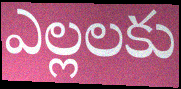
ఎల్లలకు